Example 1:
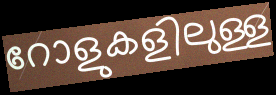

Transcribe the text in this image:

റോളുകളിലുള്ള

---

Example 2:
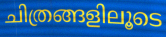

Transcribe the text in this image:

ചിത്രങ്ങളിലൂടെ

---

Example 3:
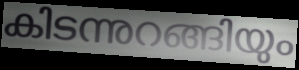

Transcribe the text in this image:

കിടന്നുറങ്ങിയും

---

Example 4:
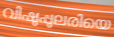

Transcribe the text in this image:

വിഷുപ്പുലരിയെ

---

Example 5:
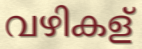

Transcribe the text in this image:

വഴികള്